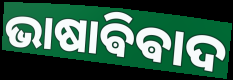
ଭାଷାଵିଵାଦ